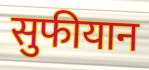
सुफीयान